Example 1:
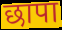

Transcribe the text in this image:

छापा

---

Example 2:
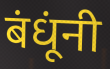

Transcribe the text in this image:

बंधूंनी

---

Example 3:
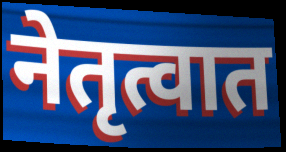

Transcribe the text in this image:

नेतृत्वात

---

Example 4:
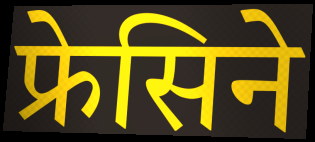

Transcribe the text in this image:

फ्रेसिने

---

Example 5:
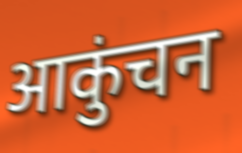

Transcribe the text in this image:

आकुंचन